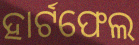
ହାର୍ଟଫେଲ